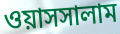
ওয়াসসালাম